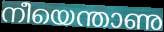
നീയെന്താണു